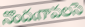
నొందఁగావలసె